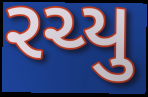
રચ્યુ